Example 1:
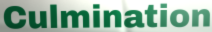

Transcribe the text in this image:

Culmination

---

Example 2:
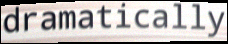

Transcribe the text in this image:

dramatically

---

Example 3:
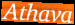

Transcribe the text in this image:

Athava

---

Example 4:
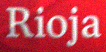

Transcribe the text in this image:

Rioja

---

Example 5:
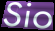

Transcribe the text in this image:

Sio